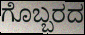
ಗೊಬ್ಬರದ